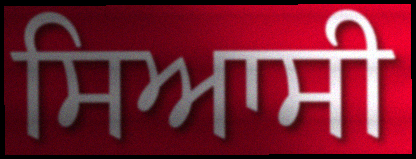
ਸਿਆਸੀ